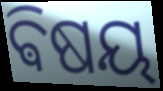
ଵିଷୟ